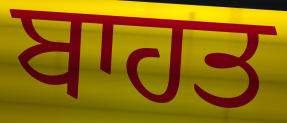
ਬਾਹਤ